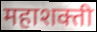
महाशक्‍ती